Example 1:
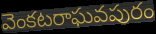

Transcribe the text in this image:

వెంకటరాఘవపురం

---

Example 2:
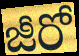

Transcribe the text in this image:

జీరో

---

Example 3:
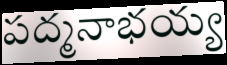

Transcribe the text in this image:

పద్మనాభయ్య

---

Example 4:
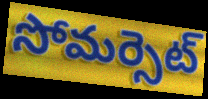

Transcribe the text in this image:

సోమర్సెట్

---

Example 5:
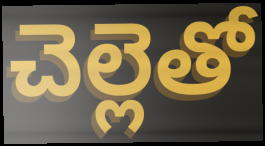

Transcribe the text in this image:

చెల్లెతో